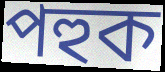
পহুক